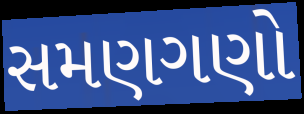
સમણગણો